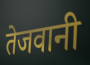
तेजवानी